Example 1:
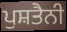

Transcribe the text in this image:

ਪੁਸ਼ਤੈਨੀ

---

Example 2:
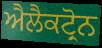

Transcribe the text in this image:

ਐਲੈਕਟ੍ਰੋਨ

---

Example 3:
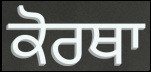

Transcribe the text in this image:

ਕੋਰਥਾ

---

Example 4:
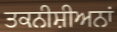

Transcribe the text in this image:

ਤਕਨੀਸ਼ੀਅਨਾਂ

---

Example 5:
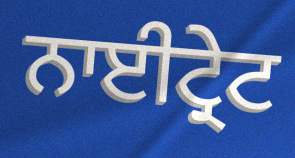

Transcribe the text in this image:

ਨਾਈਟ੍ਰੇਟ